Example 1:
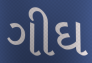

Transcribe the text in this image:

ગીઘ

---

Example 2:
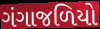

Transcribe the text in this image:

ગંગાજળિયો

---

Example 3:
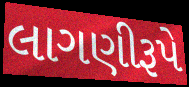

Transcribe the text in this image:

લાગણીરૂપે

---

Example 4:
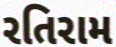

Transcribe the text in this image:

રતિરામ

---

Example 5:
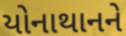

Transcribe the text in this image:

યોનાથાનને